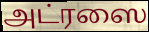
அட்ரஸை